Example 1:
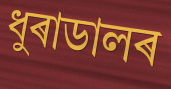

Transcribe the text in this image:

ধুৰাডালৰ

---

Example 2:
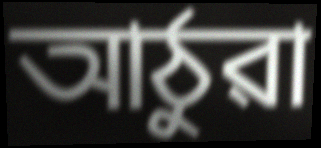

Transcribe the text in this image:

আঠুৱা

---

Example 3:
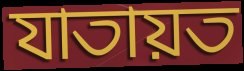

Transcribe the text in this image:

যাতায়ত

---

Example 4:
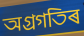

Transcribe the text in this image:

অগ্ৰগতিৰ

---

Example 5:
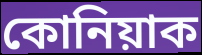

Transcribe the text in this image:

কোনিয়াক